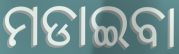
ମଡାଇବା